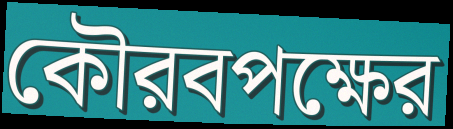
কৌরবপক্ষের